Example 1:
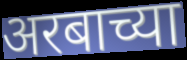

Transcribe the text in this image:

अरबाच्या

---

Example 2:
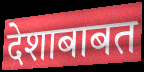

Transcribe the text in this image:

देशाबाबत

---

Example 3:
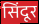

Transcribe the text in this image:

सिंदूर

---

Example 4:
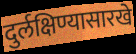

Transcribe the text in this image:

दुर्लक्षिण्यासारखे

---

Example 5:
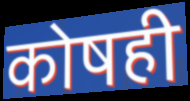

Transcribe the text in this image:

कोषही